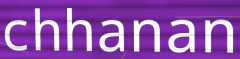
chhanan